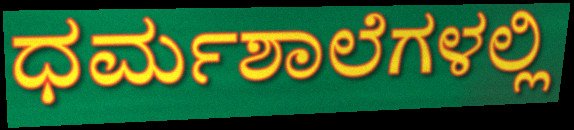
ಧರ್ಮಶಾಲೆಗಳಲ್ಲಿ